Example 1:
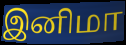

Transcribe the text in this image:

இனிமா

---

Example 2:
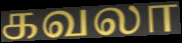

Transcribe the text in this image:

கவலா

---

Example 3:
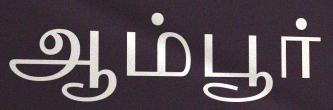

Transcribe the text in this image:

ஆம்பூர்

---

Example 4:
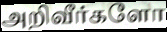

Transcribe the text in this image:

அறிவீர்களோ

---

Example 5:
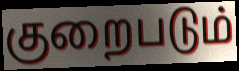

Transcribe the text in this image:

குறைபடும்